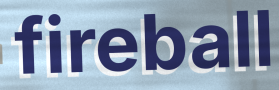
fireball